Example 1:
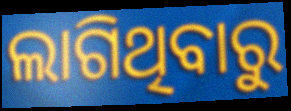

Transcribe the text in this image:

ଲାଗିଥିବାରୁ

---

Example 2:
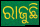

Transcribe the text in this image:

ରାଜୁଛି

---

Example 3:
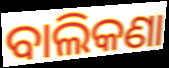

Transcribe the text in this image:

ବାଲିକଣା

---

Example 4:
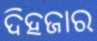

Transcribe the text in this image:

ଦିହଜାର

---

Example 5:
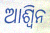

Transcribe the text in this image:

ଆଶ୍ୱିନ